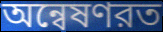
অন্বেষণরত